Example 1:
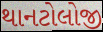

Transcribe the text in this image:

થાનટોલોજી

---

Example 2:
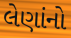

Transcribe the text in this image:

લેણાંનો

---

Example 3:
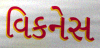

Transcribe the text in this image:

વિકનેસ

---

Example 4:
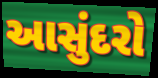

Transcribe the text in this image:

આસુંદરો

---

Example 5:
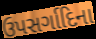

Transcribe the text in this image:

ઉપસર્ગાદિના